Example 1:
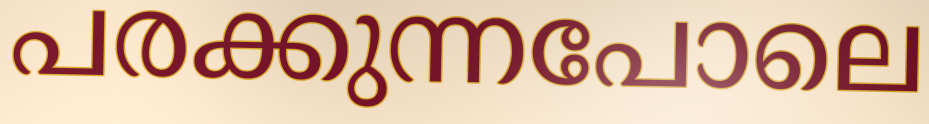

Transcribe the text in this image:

പരക്കുന്നപോലെ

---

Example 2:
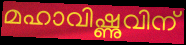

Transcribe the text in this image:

മഹാവിഷ്ണുവിന്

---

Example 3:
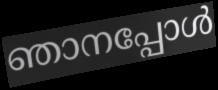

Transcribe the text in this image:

ഞാനപ്പോൾ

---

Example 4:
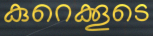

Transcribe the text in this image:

കുറെക്കൂടെ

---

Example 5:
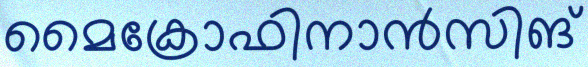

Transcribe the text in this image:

മൈക്രോഫിനാൻസിങ്